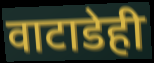
वाटाडेही